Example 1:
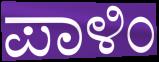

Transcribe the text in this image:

ಪಾಳಿಂ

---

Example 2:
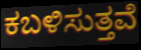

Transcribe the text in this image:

ಕಬಳಿಸುತ್ತವೆ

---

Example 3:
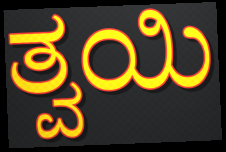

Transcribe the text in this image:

ತ್ವಯಿ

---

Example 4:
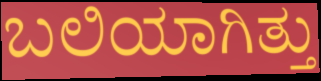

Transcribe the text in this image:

ಬಲಿಯಾಗಿತ್ತು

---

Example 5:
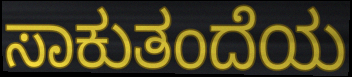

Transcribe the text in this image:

ಸಾಕುತಂದೆಯ